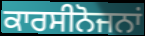
ਕਾਰਸੀਨੋਜਨਾਂ